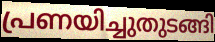
പ്രണയിച്ചുതുടങ്ങി